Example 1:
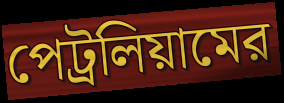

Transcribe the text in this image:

পেট্রলিয়ামের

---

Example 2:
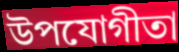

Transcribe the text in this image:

উপযোগীতা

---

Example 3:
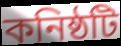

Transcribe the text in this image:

কনিষ্ঠটি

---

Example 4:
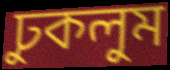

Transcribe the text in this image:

ঢুকলুম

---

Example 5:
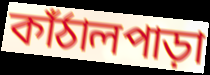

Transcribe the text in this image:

কাঁঠালপাড়া